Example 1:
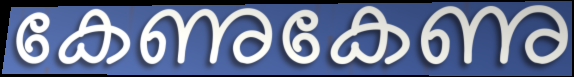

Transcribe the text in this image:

കേണുകേണു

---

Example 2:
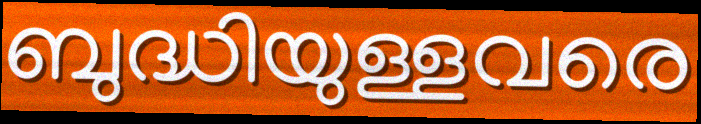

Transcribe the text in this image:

ബുദ്ധിയുള്ളവരെ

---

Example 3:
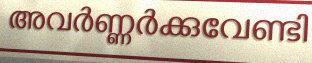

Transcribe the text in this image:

അവർണ്ണർക്കുവേണ്ടി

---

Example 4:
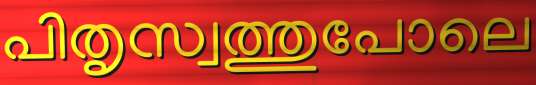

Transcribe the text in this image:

പിതൃസ്വത്തുപോലെ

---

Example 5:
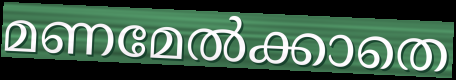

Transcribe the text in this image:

മണമേൽക്കാതെ